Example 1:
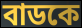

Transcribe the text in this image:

বাডকে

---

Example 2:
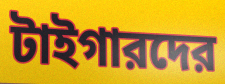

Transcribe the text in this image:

টাইগারদের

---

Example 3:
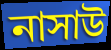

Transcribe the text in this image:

নাসাউ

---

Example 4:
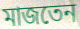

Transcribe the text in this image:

মাজতেন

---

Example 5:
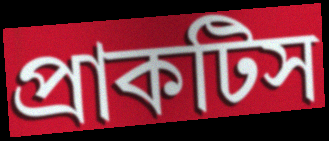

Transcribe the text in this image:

প্রাকটিস